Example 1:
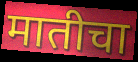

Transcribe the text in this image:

मातीचा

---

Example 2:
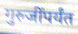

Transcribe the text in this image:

गुरुजींपर्यंत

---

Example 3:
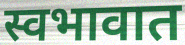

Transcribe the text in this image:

स्वभावात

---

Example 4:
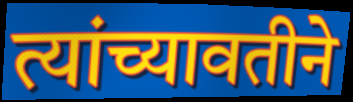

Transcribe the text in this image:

त्यांच्यावतीने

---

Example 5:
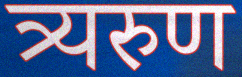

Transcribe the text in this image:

त्र्यरुण